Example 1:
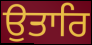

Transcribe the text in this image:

ਉਤਾਰਿ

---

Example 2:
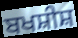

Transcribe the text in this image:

ਬਖਸ਼ੀਸ਼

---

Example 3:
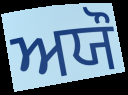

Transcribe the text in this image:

ਅਯੌ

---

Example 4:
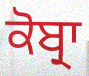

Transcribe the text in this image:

ਕੋਬ੍ਰਾ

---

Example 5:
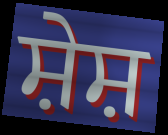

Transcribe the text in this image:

ਸ਼ੇਸ਼